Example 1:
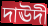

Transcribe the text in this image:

দাঊদী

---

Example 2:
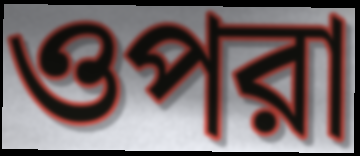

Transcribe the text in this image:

ওপরা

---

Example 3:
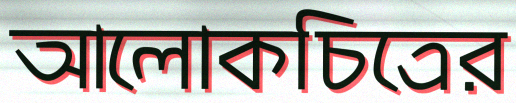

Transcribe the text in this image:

আলোকচিত্রের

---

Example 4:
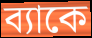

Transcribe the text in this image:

ব্যাকে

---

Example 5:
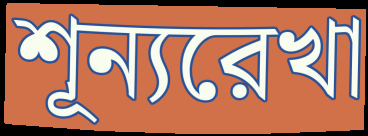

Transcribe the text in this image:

শূন্যরেখা